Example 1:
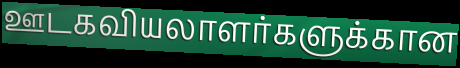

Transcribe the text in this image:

ஊடகவியலாளர்களுக்கான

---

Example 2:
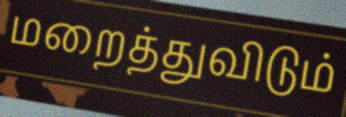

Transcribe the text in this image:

மறைத்துவிடும்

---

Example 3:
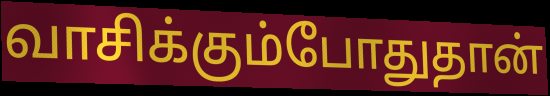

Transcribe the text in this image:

வாசிக்கும்போதுதான்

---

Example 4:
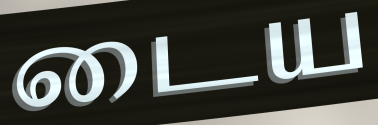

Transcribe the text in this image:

டைய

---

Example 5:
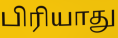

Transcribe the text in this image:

பிரியாது